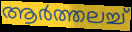
ആർത്തലച്ച്